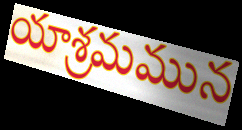
యాశ్రమమున